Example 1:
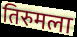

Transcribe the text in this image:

तिरुमला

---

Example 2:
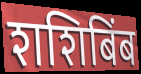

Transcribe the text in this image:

शशिबिंब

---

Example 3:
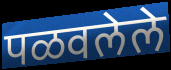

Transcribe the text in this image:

पळवलेले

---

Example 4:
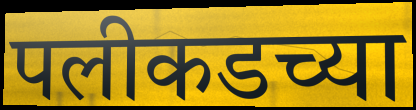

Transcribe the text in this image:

पलीकडच्या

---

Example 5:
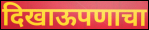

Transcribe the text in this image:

दिखाऊपणाचा